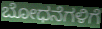
ಬೋಧನೆಗಳಿಗೆ